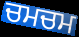
ਚਮਚਮ